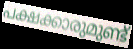
പക്ഷക്കാരുമുണ്ട്